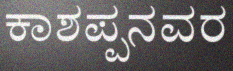
ಕಾಶಪ್ಪನವರ